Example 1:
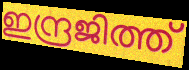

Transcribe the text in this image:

ഇന്ദ്രജിത്ത്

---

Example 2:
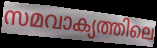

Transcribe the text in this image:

സമവാക്യത്തിലെ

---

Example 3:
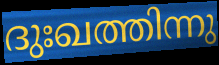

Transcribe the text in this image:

ദുഃഖത്തിന്നു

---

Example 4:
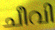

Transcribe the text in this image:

ചീവി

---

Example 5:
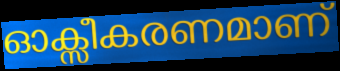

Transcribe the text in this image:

ഓക്സീകരണമാണ്